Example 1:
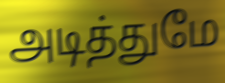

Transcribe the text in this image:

அடித்துமே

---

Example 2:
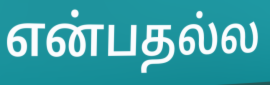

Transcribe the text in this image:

என்பதல்ல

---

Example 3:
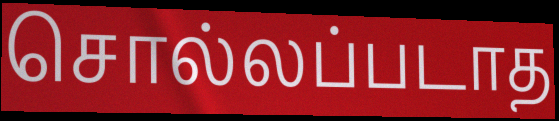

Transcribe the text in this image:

சொல்லப்படாத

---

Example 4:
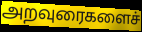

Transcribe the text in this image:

அறவுரைகளைச்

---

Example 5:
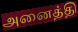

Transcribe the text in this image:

அனைத்தி